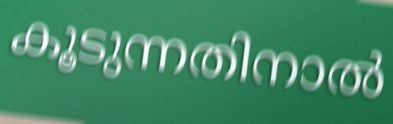
കൂടുന്നതിനാൽ